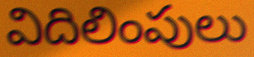
విదిలింపులు